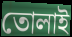
তোলাই